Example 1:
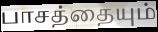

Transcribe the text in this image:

பாசத்தையும்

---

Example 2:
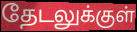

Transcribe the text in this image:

தேடலுக்குள்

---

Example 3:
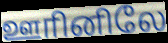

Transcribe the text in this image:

ஊரினிலே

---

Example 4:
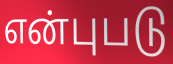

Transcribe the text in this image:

என்புபடு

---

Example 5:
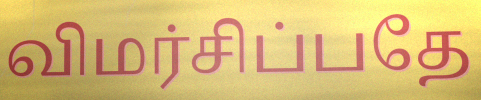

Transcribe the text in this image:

விமர்சிப்பதே